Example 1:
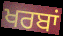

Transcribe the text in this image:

ਖਰਬਾਂ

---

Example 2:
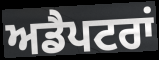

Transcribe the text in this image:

ਅਡੈਪਟਰਾਂ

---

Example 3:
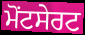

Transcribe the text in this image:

ਮੋਂਟਸੇਰਟ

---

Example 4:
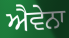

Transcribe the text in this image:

ਐਵੇਨਾ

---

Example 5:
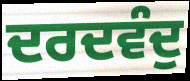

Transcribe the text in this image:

ਦਰਦਵੰਦੁ